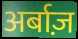
अर्बाज़